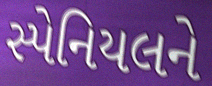
સ્પેનિયલને